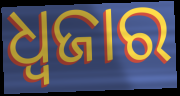
ଧ୍ୱଜାର